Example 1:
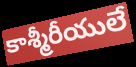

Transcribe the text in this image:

కాశ్మీరీయులే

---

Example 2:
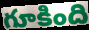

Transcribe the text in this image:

గూకింది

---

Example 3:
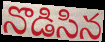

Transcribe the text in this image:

నొడిసిన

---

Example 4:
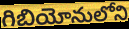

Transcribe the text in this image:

గిబియోనులోని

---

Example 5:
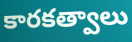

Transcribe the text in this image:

కారకత్వాలు